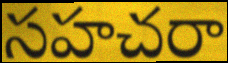
సహచరా